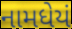
નામધેયં